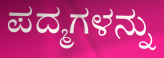
ಪದ್ಮಗಳನ್ನು